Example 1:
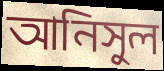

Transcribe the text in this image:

আনিসুল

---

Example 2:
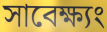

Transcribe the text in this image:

সাবেক্ষ্যং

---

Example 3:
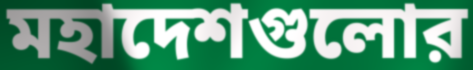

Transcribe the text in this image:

মহাদেশগুলোর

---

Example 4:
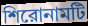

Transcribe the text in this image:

শিরোনামটি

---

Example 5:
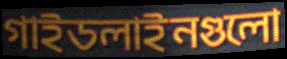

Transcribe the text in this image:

গাইডলাইনগুলো